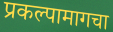
प्रकल्पामागचा